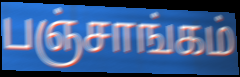
பஞ்சாங்கம்